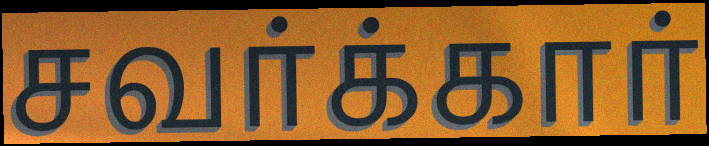
சவர்க்கார்